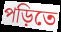
পড়িতে